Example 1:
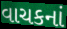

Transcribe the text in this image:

વાચકનાં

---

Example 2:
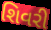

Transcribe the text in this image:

શિવરી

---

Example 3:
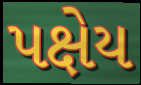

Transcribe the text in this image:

પક્ષેય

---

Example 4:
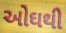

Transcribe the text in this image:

ઓઘથી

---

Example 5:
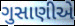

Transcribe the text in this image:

ગુસાણીએ